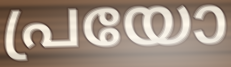
പ്രയോ